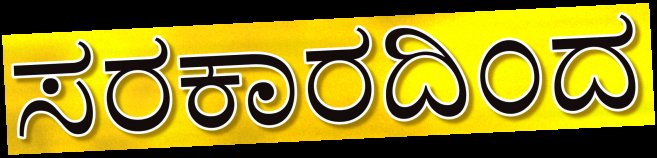
ಸರಕಾರದಿಂದ